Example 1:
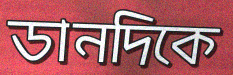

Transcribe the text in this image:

ডানদিকে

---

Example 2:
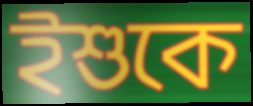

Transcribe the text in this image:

ইশুকে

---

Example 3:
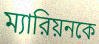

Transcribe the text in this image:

ম্যারিয়নকে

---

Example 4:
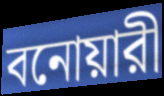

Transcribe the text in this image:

বনোয়ারী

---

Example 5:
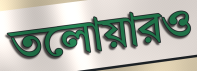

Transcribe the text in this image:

তলোয়ারও